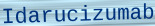
Idarucizumab